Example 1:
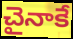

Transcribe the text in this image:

చైనాకే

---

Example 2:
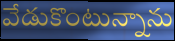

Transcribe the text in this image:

వేడుకొంటున్నాను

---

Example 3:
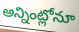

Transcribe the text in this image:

అన్నింట్లోనూ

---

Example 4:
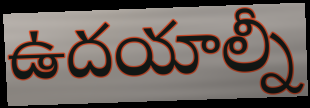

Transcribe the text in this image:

ఉదయాల్నీ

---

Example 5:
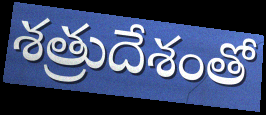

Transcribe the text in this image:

శత్రుదేశంతో